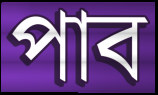
পাব